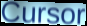
Cursor